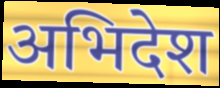
अभिदेश